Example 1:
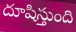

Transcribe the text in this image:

దూషిస్తుంది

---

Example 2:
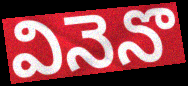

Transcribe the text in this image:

వినెనొ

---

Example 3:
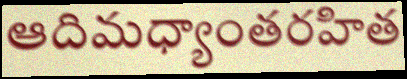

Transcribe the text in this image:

ఆదిమధ్యాంతరహిత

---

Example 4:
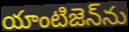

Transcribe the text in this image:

యాంటిజెన్‌ను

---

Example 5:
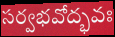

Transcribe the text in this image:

సర్వభవోద్భవః